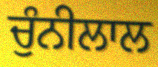
ਚੁੰਨੀਲਾਲ